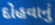
દોહવાનું